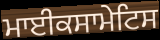
ਮਾਈਕਸਾਮੇਟਿਸ